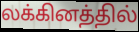
லக்கினத்தில்